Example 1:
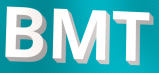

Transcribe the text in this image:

BMT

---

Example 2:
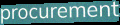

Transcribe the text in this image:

procurement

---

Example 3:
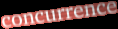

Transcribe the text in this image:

concurrence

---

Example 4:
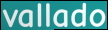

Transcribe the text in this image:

vallado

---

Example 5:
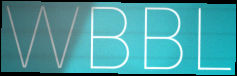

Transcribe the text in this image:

WBBL